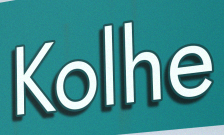
Kolhe